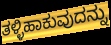
ತಳ್ಳಿಹಾಕುವುದನ್ನು